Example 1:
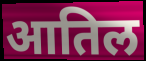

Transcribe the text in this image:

आतिल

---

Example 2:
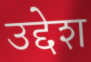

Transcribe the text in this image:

उद्देश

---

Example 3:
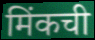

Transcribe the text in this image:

मिंकची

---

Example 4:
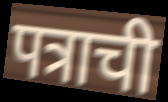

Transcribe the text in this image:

पत्राची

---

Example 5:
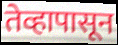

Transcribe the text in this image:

तेव्हापासून